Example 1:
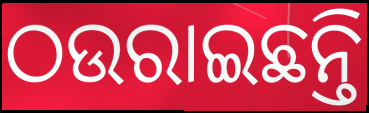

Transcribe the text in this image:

ଠଉରାଇଛନ୍ତି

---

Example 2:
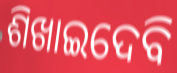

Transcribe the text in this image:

ଶିଖାଇଦେବି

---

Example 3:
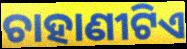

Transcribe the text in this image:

ଚାହାଣୀଟିଏ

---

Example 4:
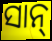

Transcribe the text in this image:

ସାନ୍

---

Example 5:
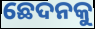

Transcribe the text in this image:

ଛେଦନକୁ